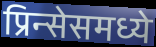
प्रिन्सेसमध्ये